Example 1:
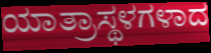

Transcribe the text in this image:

ಯಾತ್ರಾಸ್ಥಳಗಳಾದ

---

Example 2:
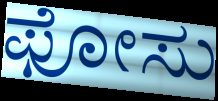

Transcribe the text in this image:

ಫೋಸು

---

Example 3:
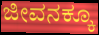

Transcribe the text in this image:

ಜೀವನಕ್ಕೂ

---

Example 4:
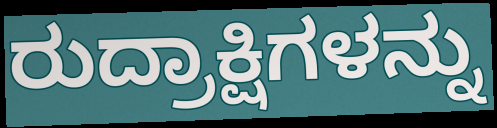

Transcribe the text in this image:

ರುದ್ರಾಕ್ಷಿಗಳನ್ನು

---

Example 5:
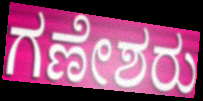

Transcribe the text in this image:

ಗಣೇಶರು